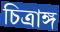
চিত্রাঙ্গ